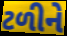
ટળીને